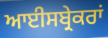
ਆਈਸਬ੍ਰੇਕਰਾਂ